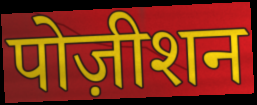
पोज़ीशन